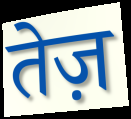
तेज़